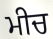
ਮੀਚ